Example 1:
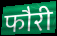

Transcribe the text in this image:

फौरी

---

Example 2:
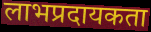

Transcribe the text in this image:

लाभप्रदायकता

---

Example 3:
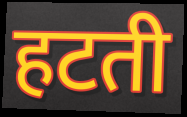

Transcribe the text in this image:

हटती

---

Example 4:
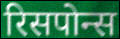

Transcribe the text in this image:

रिसपोन्स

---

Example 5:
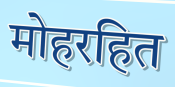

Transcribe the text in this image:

मोहरहित